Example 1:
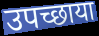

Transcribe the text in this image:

उपच्छाया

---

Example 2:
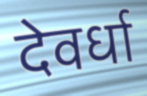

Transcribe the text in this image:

देवर्धा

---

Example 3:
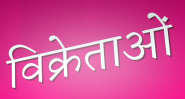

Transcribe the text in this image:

विक्रेताओं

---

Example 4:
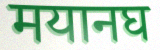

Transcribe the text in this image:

मयानघ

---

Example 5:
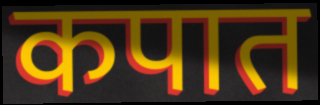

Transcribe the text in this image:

कपात